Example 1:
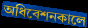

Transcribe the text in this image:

অধিবেশনকালে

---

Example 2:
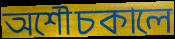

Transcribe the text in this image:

অশৌচকালে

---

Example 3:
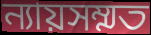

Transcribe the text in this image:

ন্যায়সম্মত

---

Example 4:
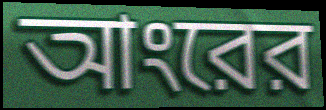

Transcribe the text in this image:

আংরের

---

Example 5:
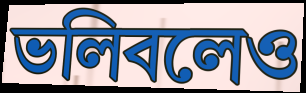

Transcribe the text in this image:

ভলিবলেও